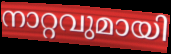
നാറ്റവുമായി